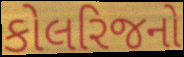
કોલરિજનો